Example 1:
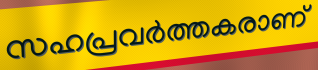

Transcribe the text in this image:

സഹപ്രവർത്തകരാണ്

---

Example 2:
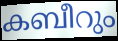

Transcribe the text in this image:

കബീറും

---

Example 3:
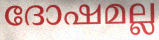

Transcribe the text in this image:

ദോഷമല്ല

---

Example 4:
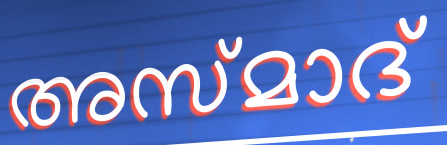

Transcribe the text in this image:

അസ്മാദ്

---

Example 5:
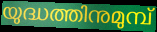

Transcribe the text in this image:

യുദ്ധത്തിനുമുമ്പ്